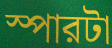
স্পারটা